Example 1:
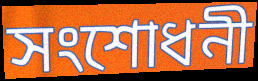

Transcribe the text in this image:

সংশোধনী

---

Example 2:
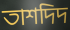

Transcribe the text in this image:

তাশদিদ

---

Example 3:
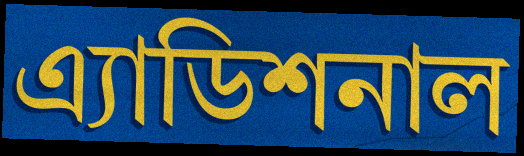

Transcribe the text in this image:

এ্যাডিশনাল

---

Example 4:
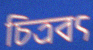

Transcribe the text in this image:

চিত্রবৎ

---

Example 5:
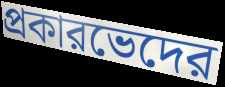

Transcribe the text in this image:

প্রকারভেদের